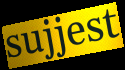
sujjest